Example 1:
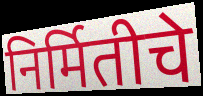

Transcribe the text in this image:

निर्मितीचे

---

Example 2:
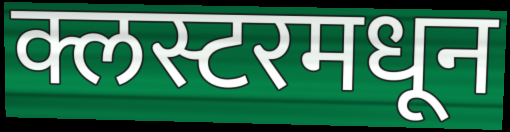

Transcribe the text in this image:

क्लस्टरमधून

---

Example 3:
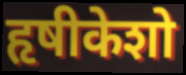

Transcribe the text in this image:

हृषीकेशो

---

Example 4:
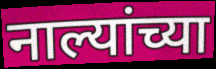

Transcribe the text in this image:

नाल्यांच्या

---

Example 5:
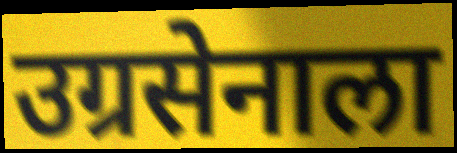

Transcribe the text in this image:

उग्रसेनाला